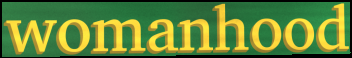
womanhood